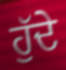
ਹੁੱਦੇ